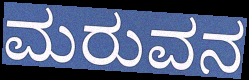
ಮರುವನ